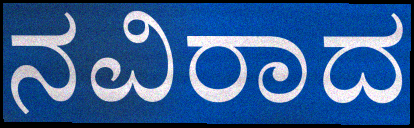
ನವಿರಾದ